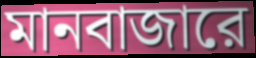
মানবাজারে